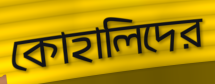
কোহালিদের